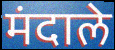
मंदाले